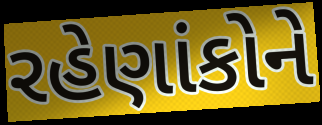
રહેણાંકોને